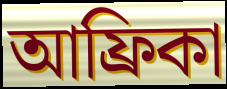
আফ্ৰিকা